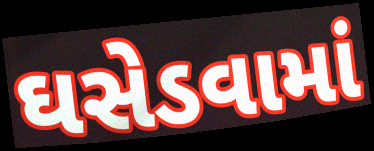
ઘસેડવામાં